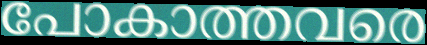
പോകാത്തവരെ